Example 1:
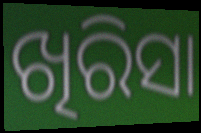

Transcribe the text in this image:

ଖିରିସା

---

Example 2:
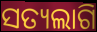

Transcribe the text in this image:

ସତ୍ୟଲାଗି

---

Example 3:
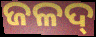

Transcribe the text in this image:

ଜଳଦ୍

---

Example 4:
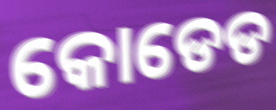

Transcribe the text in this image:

କୋଡେଡ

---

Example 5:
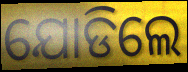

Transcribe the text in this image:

ଯୋଡିଲେ